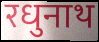
रधुनाथ